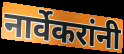
नार्वेकरांनी